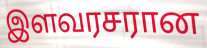
இளவரசரான